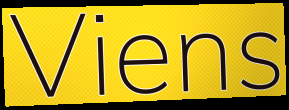
Viens